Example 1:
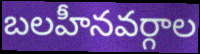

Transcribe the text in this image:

బలహీనవర్గాల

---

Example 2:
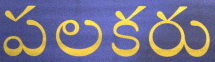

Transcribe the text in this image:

పలకరు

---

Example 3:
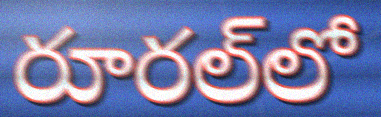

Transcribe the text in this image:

రూరల్‌లో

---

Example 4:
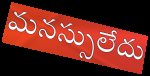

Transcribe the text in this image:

మనస్సులేదు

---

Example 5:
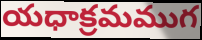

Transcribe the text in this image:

యధాక్రమముగ